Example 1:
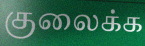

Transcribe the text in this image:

குலைக்க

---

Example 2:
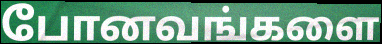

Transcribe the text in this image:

போனவங்களை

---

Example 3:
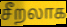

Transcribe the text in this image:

சீறலாக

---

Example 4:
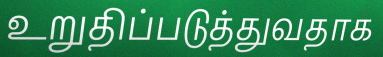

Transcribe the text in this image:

உறுதிப்படுத்துவதாக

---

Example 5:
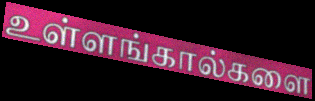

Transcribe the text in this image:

உள்ளங்கால்களை